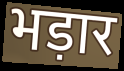
भड़ार